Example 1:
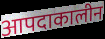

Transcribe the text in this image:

आपदाकालीन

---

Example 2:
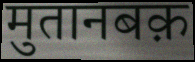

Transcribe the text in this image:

मुतानबक़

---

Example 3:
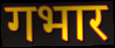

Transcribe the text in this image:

गभार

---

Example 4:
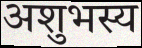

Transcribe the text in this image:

अशुभस्य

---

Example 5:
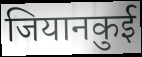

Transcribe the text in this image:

जियानकुई